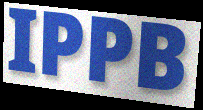
IPPB